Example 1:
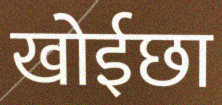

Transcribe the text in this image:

खोईछा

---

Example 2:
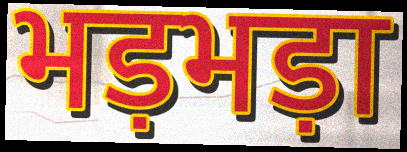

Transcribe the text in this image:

भड़भड़ा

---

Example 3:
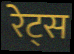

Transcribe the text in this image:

रेट्स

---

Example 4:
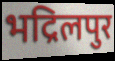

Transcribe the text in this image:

भद्रिलपुर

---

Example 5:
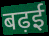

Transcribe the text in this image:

बढ़ई